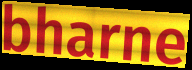
bharne